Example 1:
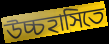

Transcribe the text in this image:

উচ্চহাসিতে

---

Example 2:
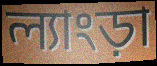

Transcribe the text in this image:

ল্যাংড়া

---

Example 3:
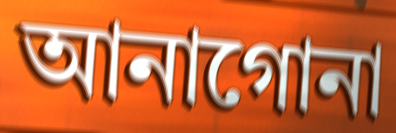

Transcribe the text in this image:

আনাগোনা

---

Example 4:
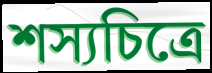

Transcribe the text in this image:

শস্যচিত্রে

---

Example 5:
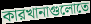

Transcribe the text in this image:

কারখানাগুলোতে